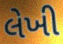
લેખી